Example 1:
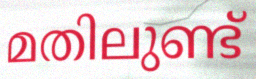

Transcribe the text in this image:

മതിലുണ്ട്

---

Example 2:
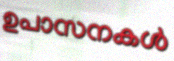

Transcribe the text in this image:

ഉപാസനകൾ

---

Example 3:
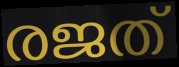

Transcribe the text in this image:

രജത്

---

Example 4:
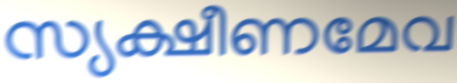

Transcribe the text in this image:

സ്യക്ഷീണമേവ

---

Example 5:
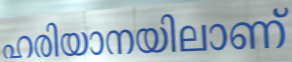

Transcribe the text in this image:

ഹരിയാനയിലാണ്